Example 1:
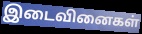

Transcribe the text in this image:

இடைவினைகள்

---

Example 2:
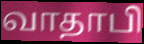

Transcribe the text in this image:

வாதாபி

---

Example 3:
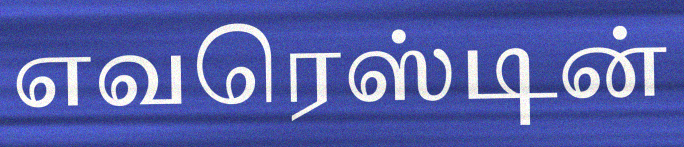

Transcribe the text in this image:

எவரெஸ்டின்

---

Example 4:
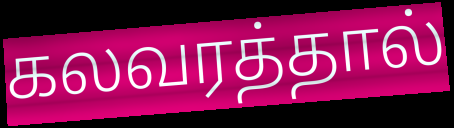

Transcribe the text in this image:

கலவரத்தால்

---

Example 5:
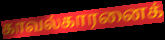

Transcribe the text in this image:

காவல்காரனைக்